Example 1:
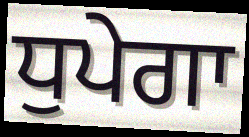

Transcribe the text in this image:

ਧੁਪੇਗਾ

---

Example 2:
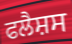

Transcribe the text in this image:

ਫਲੈਸ਼ਸ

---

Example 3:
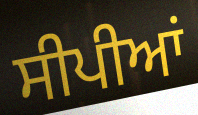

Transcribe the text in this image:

ਸੀਪੀਆਂ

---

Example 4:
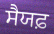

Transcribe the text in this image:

ਸੈਯਫ਼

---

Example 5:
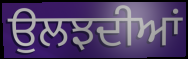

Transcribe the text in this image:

ਉਲਝਦੀਆਂ